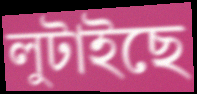
লুটাইছে